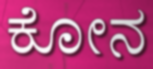
ಕೋನ